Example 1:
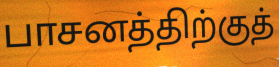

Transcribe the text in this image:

பாசனத்திற்குத்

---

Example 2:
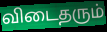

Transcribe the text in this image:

விடைதரும்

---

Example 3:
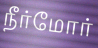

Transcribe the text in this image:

நீர்மோர்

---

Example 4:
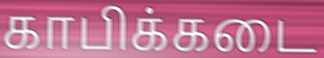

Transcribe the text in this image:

காபிக்கடை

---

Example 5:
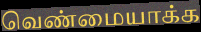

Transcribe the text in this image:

வெண்மையாக்க